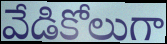
వేడికోలుగా